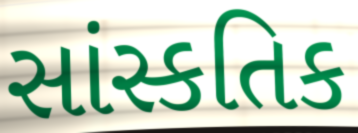
સાંસ્કતિક